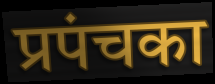
प्रपंचका